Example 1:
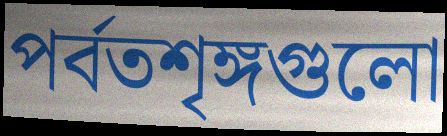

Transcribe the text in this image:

পর্বতশৃঙ্গগুলো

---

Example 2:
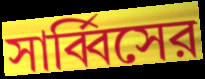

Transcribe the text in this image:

সার্ব্বিসের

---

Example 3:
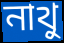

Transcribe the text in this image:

নাথু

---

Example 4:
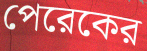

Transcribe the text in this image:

পেরেকের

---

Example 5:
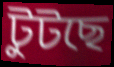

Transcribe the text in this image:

টুটছে